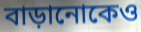
বাড়ানোকেও